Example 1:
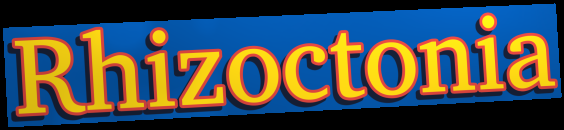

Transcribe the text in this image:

Rhizoctonia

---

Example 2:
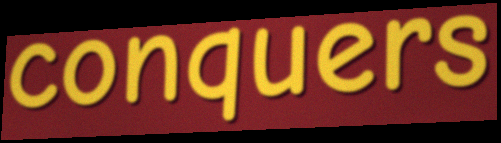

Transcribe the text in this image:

conquers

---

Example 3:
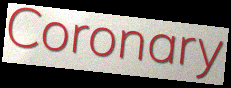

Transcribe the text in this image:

Coronary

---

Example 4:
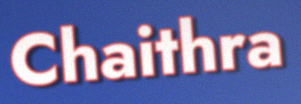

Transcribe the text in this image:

Chaithra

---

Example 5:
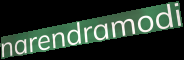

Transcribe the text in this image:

narendramodi